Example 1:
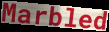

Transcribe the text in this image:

Marbled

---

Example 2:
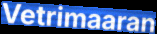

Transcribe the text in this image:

Vetrimaaran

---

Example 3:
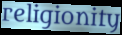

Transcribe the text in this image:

religionity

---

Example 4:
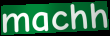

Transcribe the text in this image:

machh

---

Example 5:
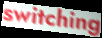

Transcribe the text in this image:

switching